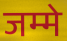
जम्मे